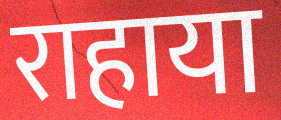
राहाया